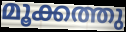
മൂക്കത്തു